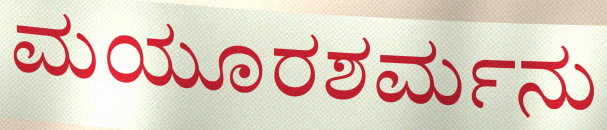
ಮಯೂರಶರ್ಮನು